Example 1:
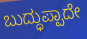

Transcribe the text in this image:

ಬುದ್ಧುಪ್ಪಾದೇ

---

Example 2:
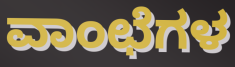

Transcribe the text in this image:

ವಾಂಛೆಗಳ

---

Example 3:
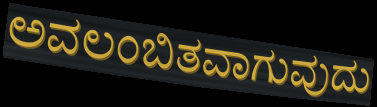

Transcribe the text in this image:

ಅವಲಂಬಿತವಾಗುವುದು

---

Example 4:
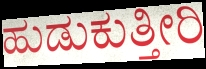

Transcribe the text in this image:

ಹುಡುಕುತ್ತೀರಿ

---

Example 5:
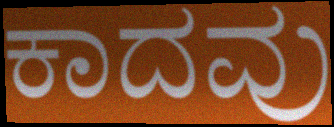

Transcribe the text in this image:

ಕಾದವು